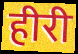
हीरी